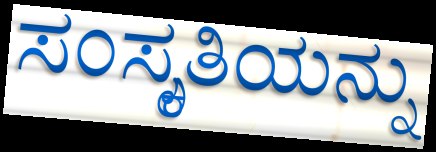
ಸಂಸ್ಕೃತಿಯನ್ನು